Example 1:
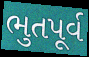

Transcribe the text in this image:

ભુતપૂર્વ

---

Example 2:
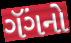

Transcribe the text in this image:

ગૅંગનો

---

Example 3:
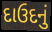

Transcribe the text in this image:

દાઉદનું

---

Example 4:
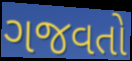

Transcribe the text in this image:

ગજવતો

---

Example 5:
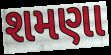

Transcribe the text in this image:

શમણા